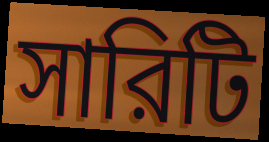
সারিটি